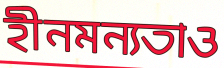
হীনমন্যতাও